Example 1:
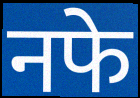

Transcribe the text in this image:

नफे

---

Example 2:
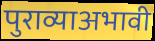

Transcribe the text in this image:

पुराव्याअभावी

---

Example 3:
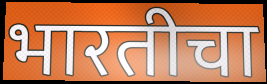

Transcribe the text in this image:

भारतीचा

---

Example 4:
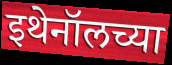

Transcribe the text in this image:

इथेनॉलच्या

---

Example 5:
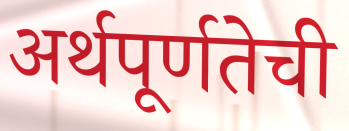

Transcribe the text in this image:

अर्थपूर्णतेची